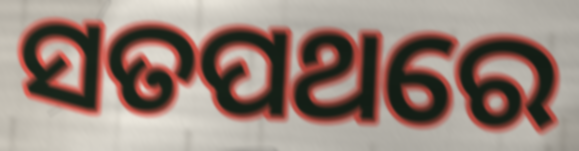
ସତପଥରେ